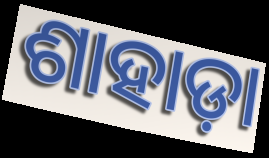
ଶାହାଡ଼ା